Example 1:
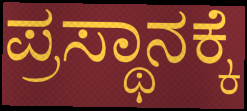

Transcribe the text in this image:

ಪ್ರಸ್ಥಾನಕ್ಕೆ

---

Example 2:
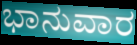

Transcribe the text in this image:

ಭಾನುವಾರ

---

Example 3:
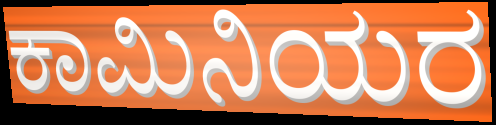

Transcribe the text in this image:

ಕಾಮಿನಿಯರ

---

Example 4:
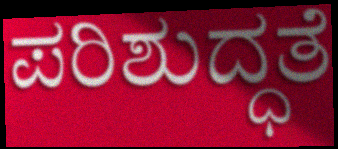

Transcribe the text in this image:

ಪರಿಶುದ್ಧತೆ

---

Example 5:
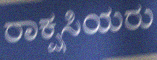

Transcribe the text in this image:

ರಾಕ್ಷಸಿಯರು